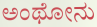
ಅಂಥೋನು